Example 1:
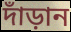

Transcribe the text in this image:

দাঁড়ান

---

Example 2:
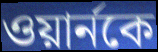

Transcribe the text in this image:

ওয়ার্নকে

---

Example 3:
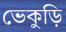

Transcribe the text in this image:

ভেকুড়ি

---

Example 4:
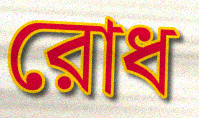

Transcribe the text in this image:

রোধ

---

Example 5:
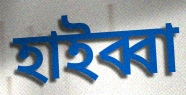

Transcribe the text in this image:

হাইব্বা